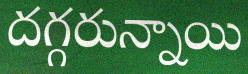
దగ్గరున్నాయి